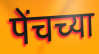
पेंचच्या